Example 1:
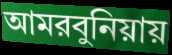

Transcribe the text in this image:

আমরবুনিয়ায়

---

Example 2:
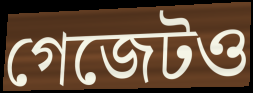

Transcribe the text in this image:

গেজেটও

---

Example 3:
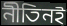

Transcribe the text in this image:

নীতিনই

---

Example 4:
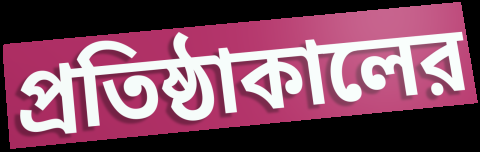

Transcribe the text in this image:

প্রতিষ্ঠাকালের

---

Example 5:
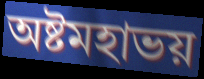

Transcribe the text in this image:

অষ্টমহাভয়